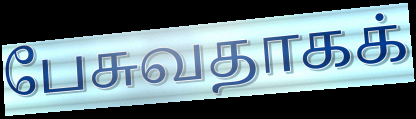
பேசுவதாகக்